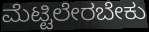
ಮೆಟ್ಟಿಲೇರಬೇಕು